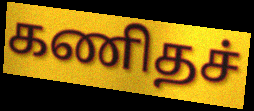
கணிதச்